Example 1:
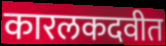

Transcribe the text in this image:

कारलकदवीत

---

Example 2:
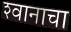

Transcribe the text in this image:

श्वानाचा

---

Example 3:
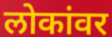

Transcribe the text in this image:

लोकांवर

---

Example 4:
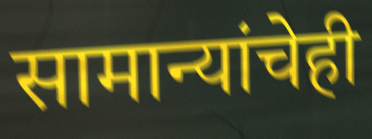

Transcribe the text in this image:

सामान्यांचेही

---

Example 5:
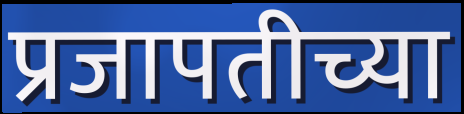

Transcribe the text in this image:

प्रजापतीच्या